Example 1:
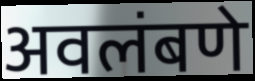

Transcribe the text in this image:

अवलंबणे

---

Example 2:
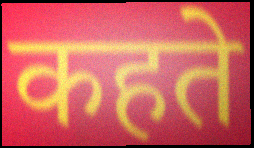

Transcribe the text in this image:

कहते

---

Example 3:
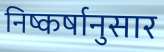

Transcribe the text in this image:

निष्कर्षानुसार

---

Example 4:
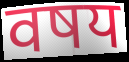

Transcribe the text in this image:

वषय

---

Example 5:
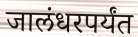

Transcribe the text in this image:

जालंधरपर्यंत